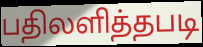
பதிலளித்தபடி